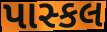
પાસ્કલ